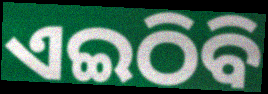
ଏଇଠିବି